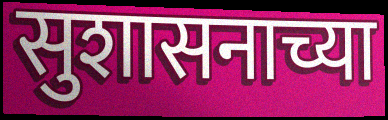
सुशासनाच्या